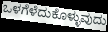
ಒಳಗೆಳೆದುಕೊಳ್ಳುವುದು